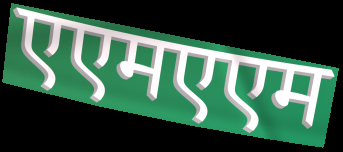
एएमएएम